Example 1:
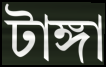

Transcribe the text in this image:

টাঙ্গা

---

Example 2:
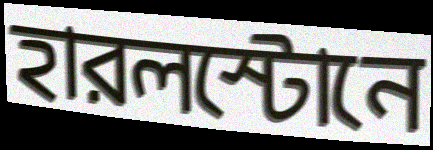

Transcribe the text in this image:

হারলস্টোনে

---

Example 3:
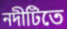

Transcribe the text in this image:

নদীটিতে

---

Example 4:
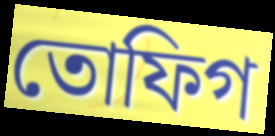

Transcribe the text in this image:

তোফিগ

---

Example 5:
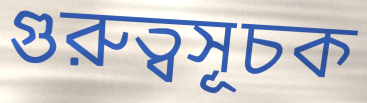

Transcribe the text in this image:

গুরুত্বসূচক